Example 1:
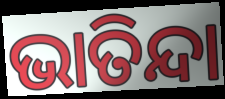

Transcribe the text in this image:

ଭାତିନ୍ଦା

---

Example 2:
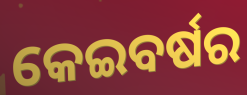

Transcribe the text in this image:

କେଇବର୍ଷର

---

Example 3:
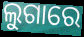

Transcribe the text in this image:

ଲୁଗାରେ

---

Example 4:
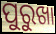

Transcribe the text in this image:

ପୁରୁଖା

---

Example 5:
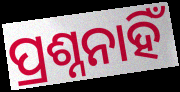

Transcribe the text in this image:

ପ୍ରଶ୍ନନାହିଁ